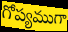
గోప్యముగా